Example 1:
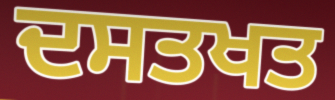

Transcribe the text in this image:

ਦਸਤਖਤ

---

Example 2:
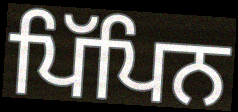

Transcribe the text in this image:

ਪਿੱਪਿਨ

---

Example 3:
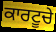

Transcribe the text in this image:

ਕਾਰਟੂਚੇ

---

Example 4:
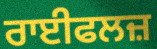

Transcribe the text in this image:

ਰਾਈਫਲਜ਼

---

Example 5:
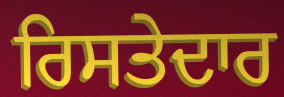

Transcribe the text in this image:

ਰਿਸਤੇਦਾਰ